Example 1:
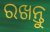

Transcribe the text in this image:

ରଖନ୍ତୁ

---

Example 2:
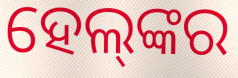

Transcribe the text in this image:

ହେଲ୍‌ଙ୍କର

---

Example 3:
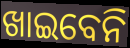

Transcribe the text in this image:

ଖାଇବେନି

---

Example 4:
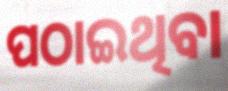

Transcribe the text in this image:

ପଠାଇଥିବା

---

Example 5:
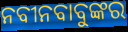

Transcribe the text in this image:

ନବୀନବାବୁଙ୍କର